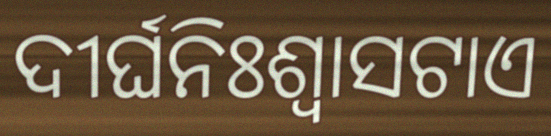
ଦୀର୍ଘନିଃଶ୍ୱାସଟାଏ